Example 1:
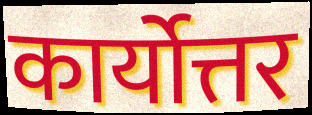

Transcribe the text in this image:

कार्योत्तर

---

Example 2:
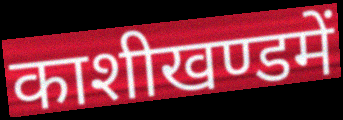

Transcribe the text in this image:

काशीखण्डमें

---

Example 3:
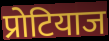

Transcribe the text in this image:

प्रोटियाज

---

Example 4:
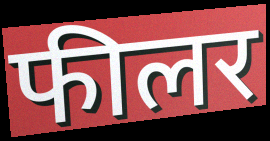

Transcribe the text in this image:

फीलर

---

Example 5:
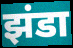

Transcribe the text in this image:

झंडा